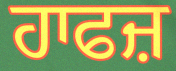
ਹਾਫਜ਼